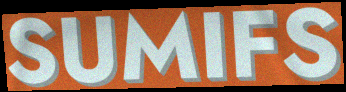
SUMIFS